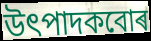
উৎপাদকবোৰ